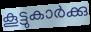
കൂട്ടുകാർക്കു